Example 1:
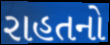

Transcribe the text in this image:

રાહતનો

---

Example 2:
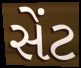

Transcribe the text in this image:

સેંટ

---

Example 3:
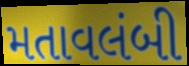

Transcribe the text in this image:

મતાવલંબી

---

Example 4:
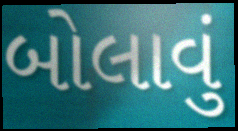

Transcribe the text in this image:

બોલાવું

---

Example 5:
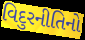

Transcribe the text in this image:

વિદુરનીતિનો